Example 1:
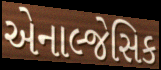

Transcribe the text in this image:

એનાલ્જેસિક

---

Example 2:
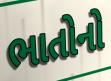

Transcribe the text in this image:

ભાતોનો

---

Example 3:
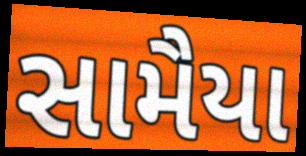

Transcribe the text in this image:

સામૈયા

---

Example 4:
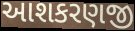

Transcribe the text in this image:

આશકરણજી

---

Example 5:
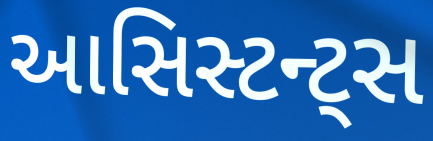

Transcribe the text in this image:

આસિસ્ટન્ટ્સ